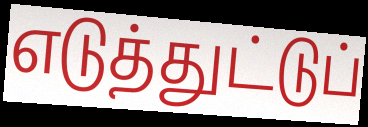
எடுத்துட்டுப்